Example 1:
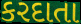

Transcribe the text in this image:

કરદાતા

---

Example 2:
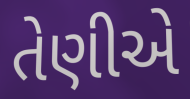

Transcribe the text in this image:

તેણીએ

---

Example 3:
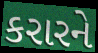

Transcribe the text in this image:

કરારને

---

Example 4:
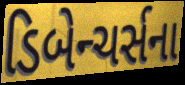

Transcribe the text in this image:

ડિબેન્ચર્સના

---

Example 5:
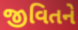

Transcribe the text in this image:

જીવિતને